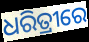
ଧରିତ୍ରୀରେ